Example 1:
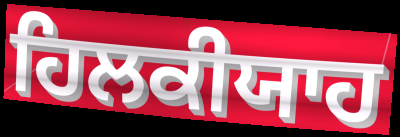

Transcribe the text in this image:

ਹਿਲਕੀਯਾਹ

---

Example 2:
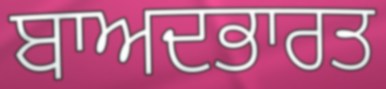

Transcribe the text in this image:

ਬਾਅਦਭਾਰਤ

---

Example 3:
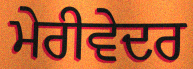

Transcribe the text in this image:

ਮੇਰੀਵੇਦਰ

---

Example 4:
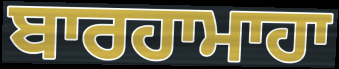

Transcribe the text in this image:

ਬਾਰਹਾਮਾਹਾ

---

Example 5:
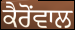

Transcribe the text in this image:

ਕੈਰੋਂਵਾਲ